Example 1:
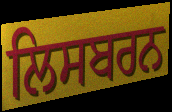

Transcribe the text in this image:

ਲਿਸਬਰਨ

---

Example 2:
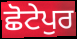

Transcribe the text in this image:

ਛੋਟੇਪੁਰ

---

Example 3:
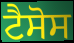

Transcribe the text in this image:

ਟੈਸੋਸ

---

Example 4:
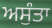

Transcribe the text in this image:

ਅਸੁੰਤਾ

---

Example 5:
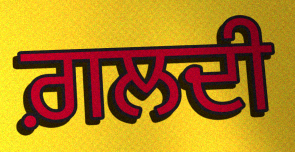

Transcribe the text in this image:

ਗ਼ਲਦੀ